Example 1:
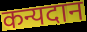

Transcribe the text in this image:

कन्यदान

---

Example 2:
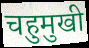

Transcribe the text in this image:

चहुमुखी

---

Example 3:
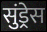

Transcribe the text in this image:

सुंड्रेस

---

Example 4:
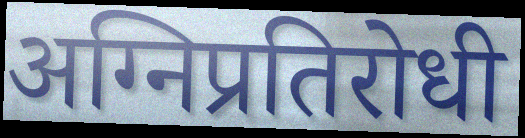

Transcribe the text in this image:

अग्निप्रतिरोधी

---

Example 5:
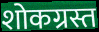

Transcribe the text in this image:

शोकग्रस्त